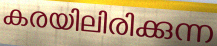
കരയിലിരിക്കുന്ന